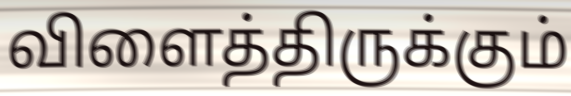
விளைத்திருக்கும்